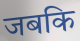
जबकि